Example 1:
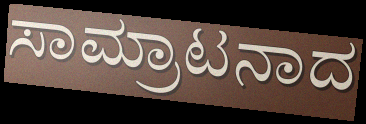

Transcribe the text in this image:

ಸಾಮ್ರಾಟನಾದ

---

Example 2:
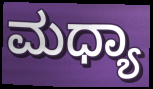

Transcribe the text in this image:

ಮಧ್ಯಾ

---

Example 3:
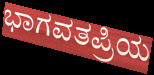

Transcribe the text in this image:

ಭಾಗವತಪ್ರಿಯ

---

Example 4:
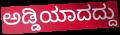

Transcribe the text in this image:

ಅಡ್ಡಿಯಾದದ್ದು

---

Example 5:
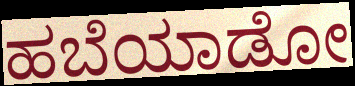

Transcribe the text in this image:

ಹಬೆಯಾಡೋ